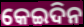
କେଇଦିନ